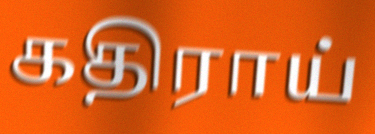
கதிராய்